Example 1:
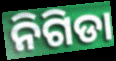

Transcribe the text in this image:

ନିଗିଡା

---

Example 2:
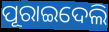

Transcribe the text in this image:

ପୂରାଇଦେଲି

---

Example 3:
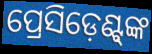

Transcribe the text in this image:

ପ୍ରେସିଡ଼େଣ୍ଟ୍‍ଙ୍କ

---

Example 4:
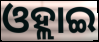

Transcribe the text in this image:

ଓହ୍ଲାଇ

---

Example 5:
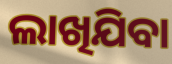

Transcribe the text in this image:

ଲାଖିଯିବା